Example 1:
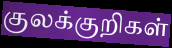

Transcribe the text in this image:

குலக்குறிகள்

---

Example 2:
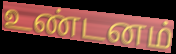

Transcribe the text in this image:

உண்டனம்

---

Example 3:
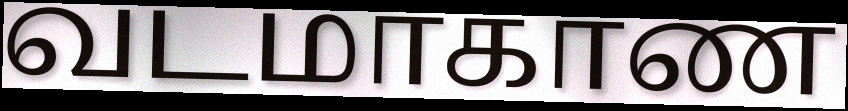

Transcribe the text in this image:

வடமாகாண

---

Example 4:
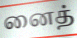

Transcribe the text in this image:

னைத்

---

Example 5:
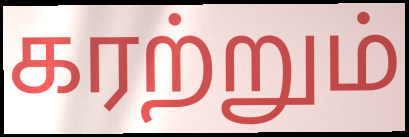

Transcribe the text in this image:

கரற்றும்